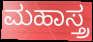
ಮಹಾಸ್ತ್ರ